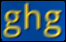
ghg